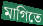
মাগিতে